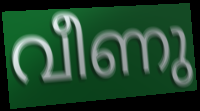
വീണു